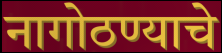
नागोठण्याचे